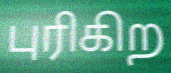
புரிகிற